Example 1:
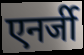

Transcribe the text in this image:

एनर्जी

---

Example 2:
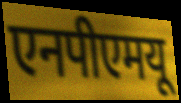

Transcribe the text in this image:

एनपीएमयू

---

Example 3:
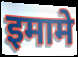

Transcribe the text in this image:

इमामे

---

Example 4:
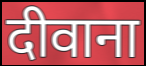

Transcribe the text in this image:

दीवाना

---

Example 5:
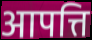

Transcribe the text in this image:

आपत्ति